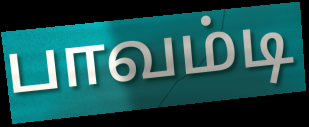
பாவம்டி